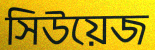
সিউয়েজ